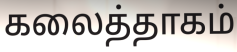
கலைத்தாகம்